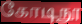
கோடிநூ